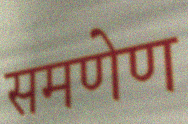
समणेण